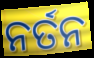
ନର୍ତନ